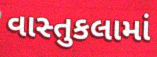
વાસ્તુકલામાં